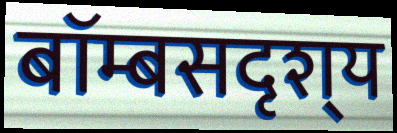
बॉम्बसदृश्य